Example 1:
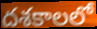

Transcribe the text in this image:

దశకాలలో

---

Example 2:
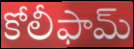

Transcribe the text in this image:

కోలీఫామ్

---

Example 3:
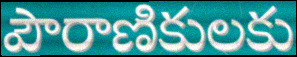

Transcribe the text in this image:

పౌరాణికులకు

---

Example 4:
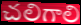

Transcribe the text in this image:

చలిగాలి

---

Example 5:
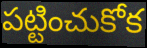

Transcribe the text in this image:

పట్టించుకోక